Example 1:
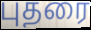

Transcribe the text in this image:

புதரை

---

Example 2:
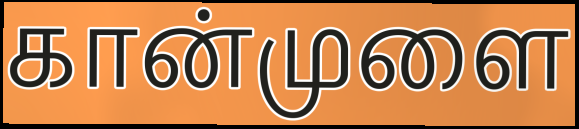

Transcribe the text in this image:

கான்முளை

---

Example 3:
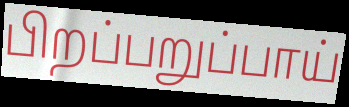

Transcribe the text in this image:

பிறப்பறுப்பாய்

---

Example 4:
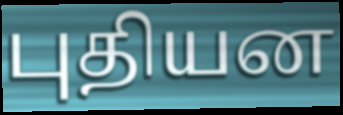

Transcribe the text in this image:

புதியன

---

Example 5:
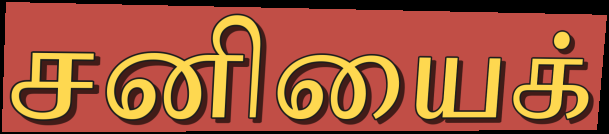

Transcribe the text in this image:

சனியைக்